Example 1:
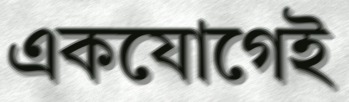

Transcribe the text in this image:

একযোগেই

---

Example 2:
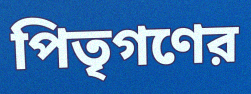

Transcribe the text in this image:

পিতৃগণের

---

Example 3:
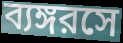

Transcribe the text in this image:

ব্যঙ্গরসে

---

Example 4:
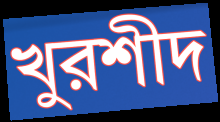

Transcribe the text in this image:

খুরশীদ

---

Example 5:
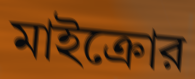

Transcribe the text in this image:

মাইক্রোর